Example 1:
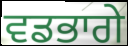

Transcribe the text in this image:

ਵਡਭਾਗੇ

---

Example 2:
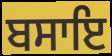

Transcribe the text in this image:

ਬਸਾਇ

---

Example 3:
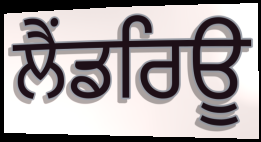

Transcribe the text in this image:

ਲੈਂਡਰਿਊ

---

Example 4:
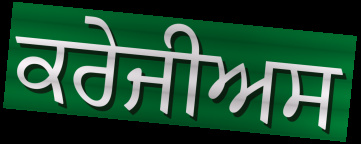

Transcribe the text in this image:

ਕਰੇਜੀਅਸ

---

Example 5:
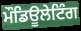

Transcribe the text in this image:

ਮੌਡਿਊਲੇਟਿੰਗ